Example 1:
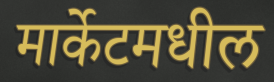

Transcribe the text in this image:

मार्केटमधील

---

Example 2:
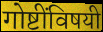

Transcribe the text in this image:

गोष्टींविषयी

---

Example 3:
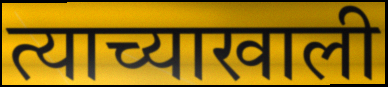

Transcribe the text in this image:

त्याच्याखाली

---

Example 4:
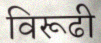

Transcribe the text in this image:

विरूढी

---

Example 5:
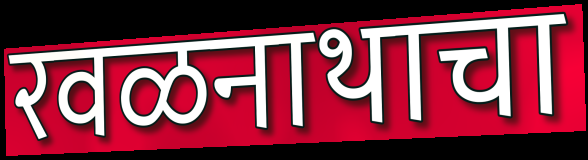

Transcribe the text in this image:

रवळनाथाचा